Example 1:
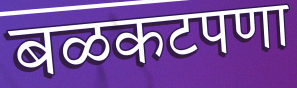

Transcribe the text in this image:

बळकटपणा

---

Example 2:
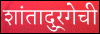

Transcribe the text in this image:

शांतादुर्गेची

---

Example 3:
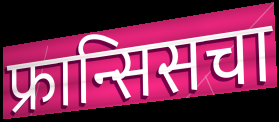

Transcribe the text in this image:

फ्रान्सिसचा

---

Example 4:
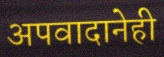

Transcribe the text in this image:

अपवादानेही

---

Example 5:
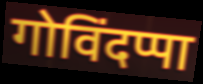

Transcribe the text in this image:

गोविंदप्पा